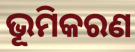
ଭୂମିକରଣ